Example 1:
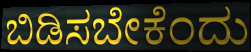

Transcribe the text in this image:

ಬಿಡಿಸಬೇಕೆಂದು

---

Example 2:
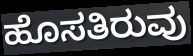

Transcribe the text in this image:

ಹೊಸತಿರುವು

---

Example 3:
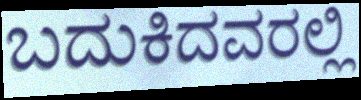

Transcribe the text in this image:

ಬದುಕಿದವರಲ್ಲಿ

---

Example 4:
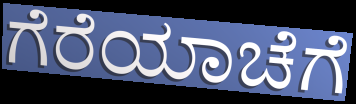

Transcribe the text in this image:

ಗೆರೆಯಾಚೆಗೆ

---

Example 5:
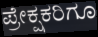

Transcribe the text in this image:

ಪ್ರೇಕ್ಷಕರಿಗೂ